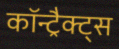
कॉन्ट्रैक्ट्स